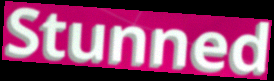
Stunned